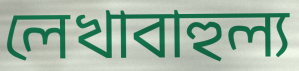
লেখাবাহুল্য